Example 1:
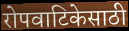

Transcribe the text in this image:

रोपवाटिकेसाठी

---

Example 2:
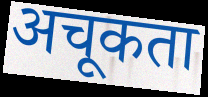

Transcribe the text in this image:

अचूकता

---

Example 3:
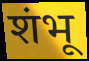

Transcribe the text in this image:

शंभू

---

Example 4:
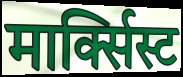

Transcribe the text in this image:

मार्क्सिस्ट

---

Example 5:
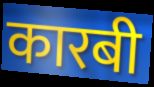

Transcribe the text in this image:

कारबी